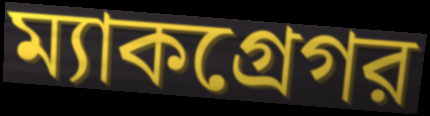
ম্যাকগ্রেগর